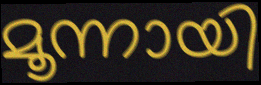
മൂന്നായി